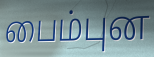
பைம்புன